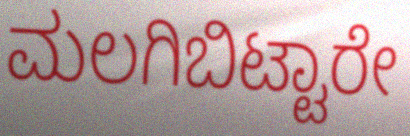
ಮಲಗಿಬಿಟ್ಟಾರೇ